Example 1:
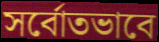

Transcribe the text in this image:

সর্বোতভাবে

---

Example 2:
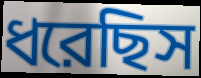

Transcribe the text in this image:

ধরেছিস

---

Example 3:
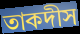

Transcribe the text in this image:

তাকদীস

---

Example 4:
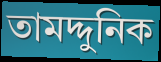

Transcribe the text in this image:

তামদ্দুনিক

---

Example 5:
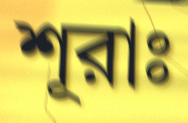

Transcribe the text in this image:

শূরাঃ